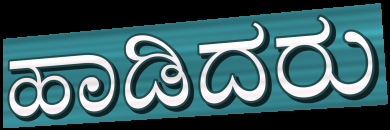
ಹಾಡಿದರು